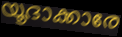
യൂദാക്കാരേ